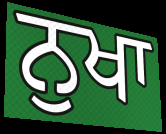
ਨੁਖਾ